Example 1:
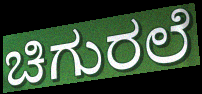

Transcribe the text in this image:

ಚಿಗುರಲೆ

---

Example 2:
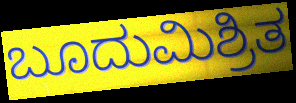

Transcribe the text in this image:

ಬೂದುಮಿಶ್ರಿತ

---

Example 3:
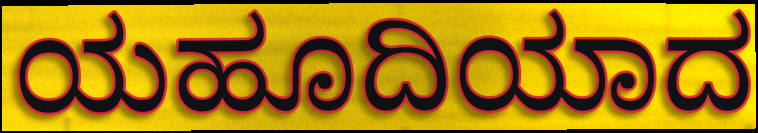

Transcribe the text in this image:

ಯಹೂದಿಯಾದ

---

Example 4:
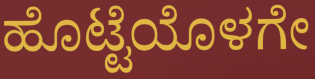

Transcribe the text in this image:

ಹೊಟ್ಟೆಯೊಳಗೇ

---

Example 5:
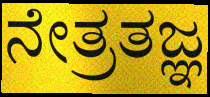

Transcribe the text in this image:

ನೇತ್ರತಜ್ಞ